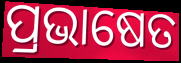
ପ୍ରଭାଷେତ